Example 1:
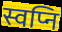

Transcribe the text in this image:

स्वप्नि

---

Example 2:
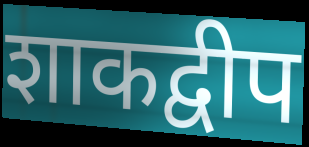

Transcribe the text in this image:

शाकद्वीप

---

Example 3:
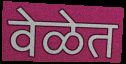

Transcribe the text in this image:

वेळेत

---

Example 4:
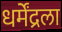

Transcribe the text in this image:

धर्मेंद्रला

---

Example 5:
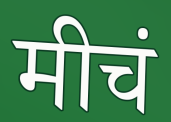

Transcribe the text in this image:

मीचं